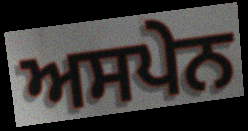
ਅਸਪੇਨ